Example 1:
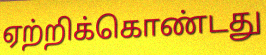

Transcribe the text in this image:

ஏற்றிக்கொண்டது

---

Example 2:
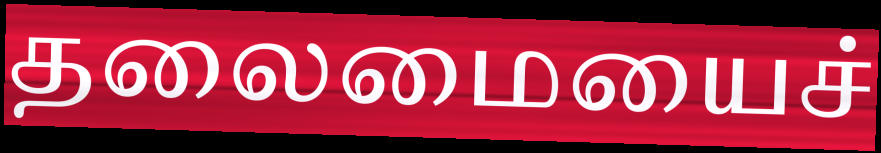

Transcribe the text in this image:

தலைமையைச்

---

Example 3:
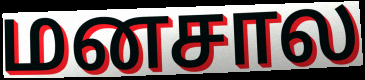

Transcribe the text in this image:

மனசால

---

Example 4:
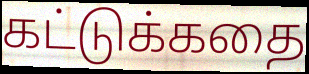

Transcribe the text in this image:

கட்டுக்கதை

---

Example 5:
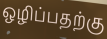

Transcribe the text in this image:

ஒழிப்பதற்கு